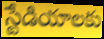
స్టేడియాలకు